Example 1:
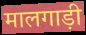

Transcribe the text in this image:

मालगाड़ी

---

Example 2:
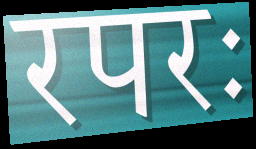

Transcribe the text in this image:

रपरः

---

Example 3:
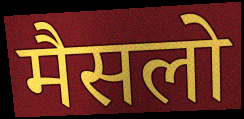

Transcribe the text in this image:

मैसलो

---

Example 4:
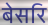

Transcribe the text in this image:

बेसरि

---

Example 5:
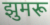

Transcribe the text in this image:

झुमरू